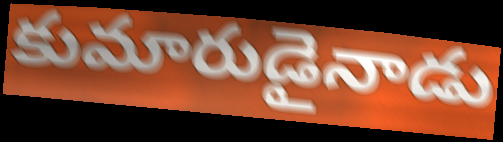
కుమారుడైనాడు